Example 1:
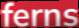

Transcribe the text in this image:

ferns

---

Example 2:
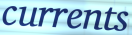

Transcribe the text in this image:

currents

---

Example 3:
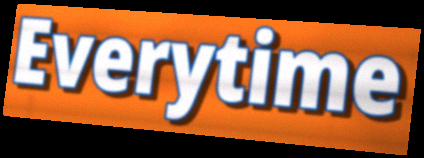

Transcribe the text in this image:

Everytime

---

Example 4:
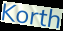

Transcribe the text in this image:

Korth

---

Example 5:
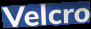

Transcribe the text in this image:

Velcro